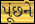
પૂંછને